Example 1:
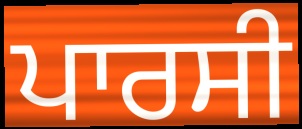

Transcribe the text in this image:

ਪਾਰਸੀ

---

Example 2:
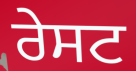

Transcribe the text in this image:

ਰੇਸਟ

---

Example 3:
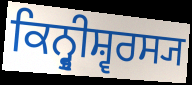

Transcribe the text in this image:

ਕਿਨ੍ਤ੍ਵੀਸ਼੍ਵਰਸ੍ਯ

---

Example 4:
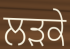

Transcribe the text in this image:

ਲਡ਼ਕੇ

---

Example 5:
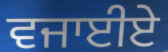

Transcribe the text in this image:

ਵਜਾਈਏ